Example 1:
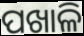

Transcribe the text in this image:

ପଖାଳି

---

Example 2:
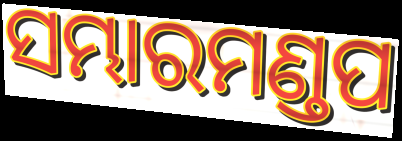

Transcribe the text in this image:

ସମ୍ଭାରମଣ୍ଡପ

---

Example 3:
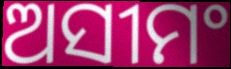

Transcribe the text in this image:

ଅସୀମଂ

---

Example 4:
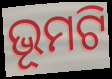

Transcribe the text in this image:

ଭୂମଟି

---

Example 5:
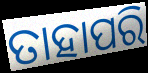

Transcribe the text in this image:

ତାହାପରି